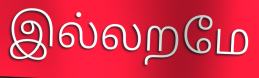
இல்லறமே